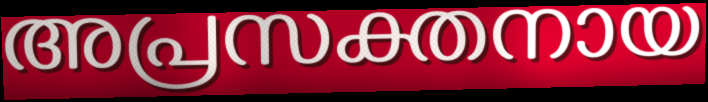
അപ്രസക്തനായ